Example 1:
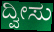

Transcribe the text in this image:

ದ್ವೀಸು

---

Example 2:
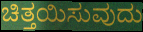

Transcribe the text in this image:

ಚಿತ್ತಯಿಸುವುದು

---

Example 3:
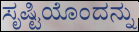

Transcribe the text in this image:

ಸೃಷ್ಟಿಯೊಂದನ್ನು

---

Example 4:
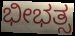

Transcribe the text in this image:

ಭೀಭತ್ಸ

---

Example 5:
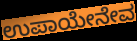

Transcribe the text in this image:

ಉಪಾಯೇನೇವ